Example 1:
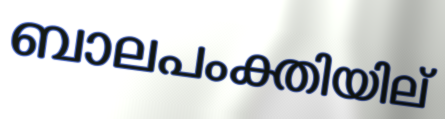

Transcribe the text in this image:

ബാലപംക്തിയില്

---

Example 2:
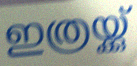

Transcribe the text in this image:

ഇത്രയ്ക്കു്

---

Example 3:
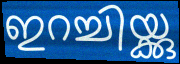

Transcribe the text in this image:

ഇറച്ചിയ്ക്കു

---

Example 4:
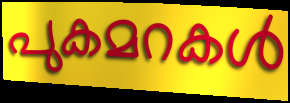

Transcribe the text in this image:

പുകമറകൾ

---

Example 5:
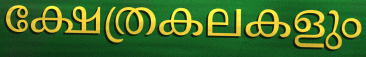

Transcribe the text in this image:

ക്ഷേത്രകലകളും